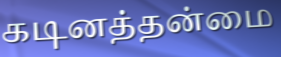
கடினத்தன்மை